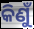
କିଣୁଁ